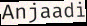
Anjaadi